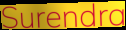
Surendra